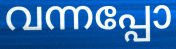
വന്നപ്പോ